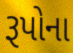
રૂપોના